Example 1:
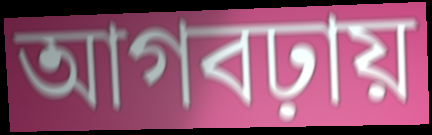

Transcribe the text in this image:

আগবঢ়ায়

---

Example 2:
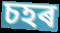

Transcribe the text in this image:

চহৰ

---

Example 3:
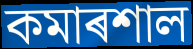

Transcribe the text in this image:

কমাৰশাল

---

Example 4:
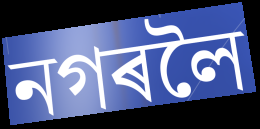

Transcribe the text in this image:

নগৰলৈ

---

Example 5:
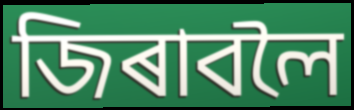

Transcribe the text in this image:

জিৰাবলৈ